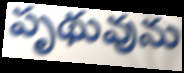
పృథువును